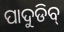
ପାଦୁଡିବ୍